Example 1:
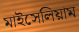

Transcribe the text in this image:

মাইসেলিয়াম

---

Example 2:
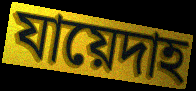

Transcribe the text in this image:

যায়েদাহ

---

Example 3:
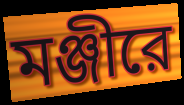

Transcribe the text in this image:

মঞ্জীরে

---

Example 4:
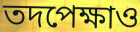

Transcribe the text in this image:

তদপেক্ষাও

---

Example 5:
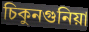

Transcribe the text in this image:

চিকুনগুনিয়া